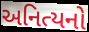
અનિત્યનો